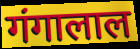
गंगालाल